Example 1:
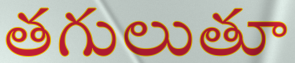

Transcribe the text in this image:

తగులుతూ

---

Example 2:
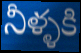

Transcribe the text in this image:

నీళ్ళకి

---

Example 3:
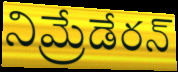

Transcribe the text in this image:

నిమ్రేడేరన్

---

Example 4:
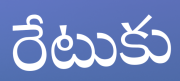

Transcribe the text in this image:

రేటుకు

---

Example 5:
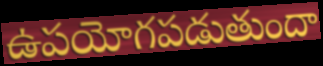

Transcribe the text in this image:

ఉపయోగపడుతుందా